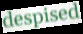
despised